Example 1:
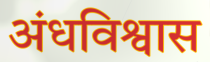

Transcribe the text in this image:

अंधविश्वास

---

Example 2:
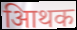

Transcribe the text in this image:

आिथक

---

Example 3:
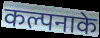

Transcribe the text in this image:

कल्पनाके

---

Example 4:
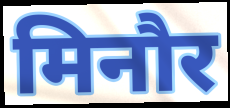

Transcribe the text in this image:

मिनौर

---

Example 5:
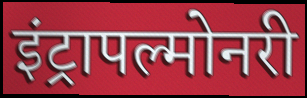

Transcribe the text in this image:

इंट्रापल्मोनरी